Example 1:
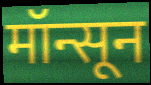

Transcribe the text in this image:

मॉन्सून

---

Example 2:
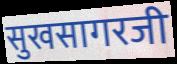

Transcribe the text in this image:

सुखसागरजी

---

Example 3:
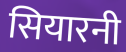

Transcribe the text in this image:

सियारनी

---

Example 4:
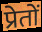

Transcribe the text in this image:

प्रेतों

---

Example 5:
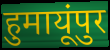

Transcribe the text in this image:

हुमायूंपुर